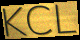
KCL